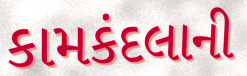
કામકંદલાની